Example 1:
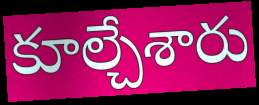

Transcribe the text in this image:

కూల్చేశారు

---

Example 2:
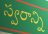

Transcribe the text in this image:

స్వరాన్ని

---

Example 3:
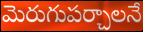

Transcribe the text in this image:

మెరుగుపర్చాలనే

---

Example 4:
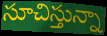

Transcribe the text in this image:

సూచిస్తున్నా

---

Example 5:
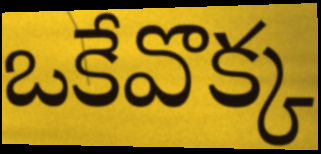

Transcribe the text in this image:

ఒకేవొక్క